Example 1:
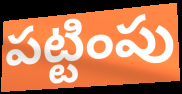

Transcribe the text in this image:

పట్టింపు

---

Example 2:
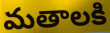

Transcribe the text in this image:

మతాలకి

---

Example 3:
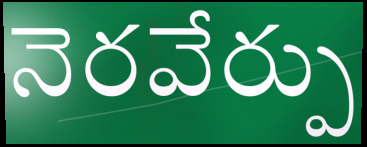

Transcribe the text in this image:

నెరవేర్పు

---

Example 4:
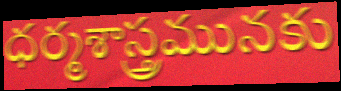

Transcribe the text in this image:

ధర్మశాస్త్రమునకు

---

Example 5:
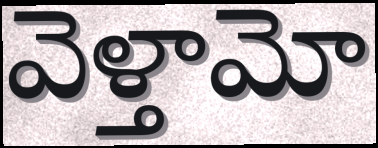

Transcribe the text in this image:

వెళ్తామో